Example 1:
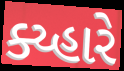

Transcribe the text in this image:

ક્ય્હારે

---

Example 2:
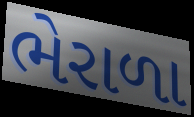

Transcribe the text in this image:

ભેરાળા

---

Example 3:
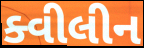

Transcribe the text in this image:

ક્વીલીન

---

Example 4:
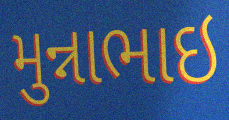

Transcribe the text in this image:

મુન્નાભાઇ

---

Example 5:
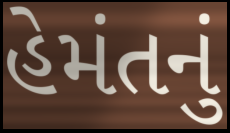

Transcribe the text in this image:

હેમંતનું